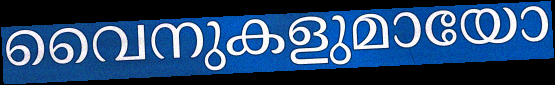
വൈനുകളുമായോ